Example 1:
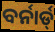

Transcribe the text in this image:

ବର୍ନାର୍ଡ୍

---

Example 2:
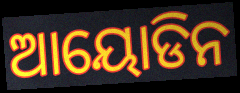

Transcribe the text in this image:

ଆୟୋଡିନ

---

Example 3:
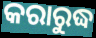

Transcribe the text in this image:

କରାରୁଦ୍ଧ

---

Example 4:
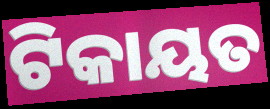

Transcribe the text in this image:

ଟିକାୟତ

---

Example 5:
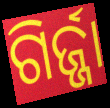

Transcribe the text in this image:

ଗିର୍ଜ୍ଜା